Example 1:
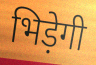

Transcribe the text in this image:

भिड़ेगी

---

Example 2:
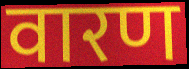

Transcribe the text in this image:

वारण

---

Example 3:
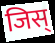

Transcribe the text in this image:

जिस्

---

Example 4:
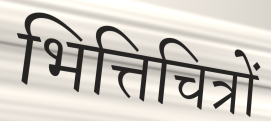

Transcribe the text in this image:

भित्तिचित्रों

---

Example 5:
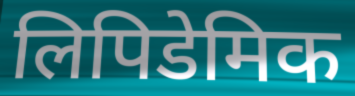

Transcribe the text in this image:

लिपिडेमिक